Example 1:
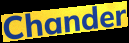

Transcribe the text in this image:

Chander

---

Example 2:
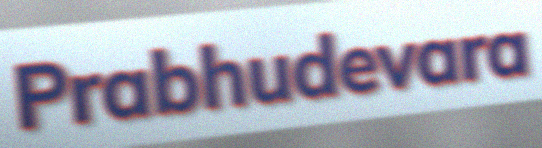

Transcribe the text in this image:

Prabhudevara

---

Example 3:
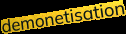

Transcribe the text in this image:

demonetisation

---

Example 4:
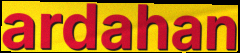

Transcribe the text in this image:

ardahan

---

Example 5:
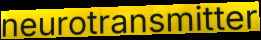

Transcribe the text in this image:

neurotransmitter